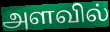
அளவில்